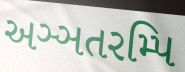
અઞ્ઞતરમ્પિ